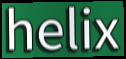
helix